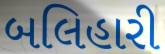
બલિહારી